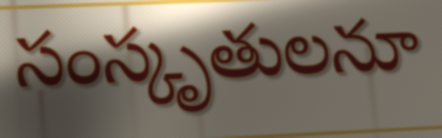
సంస్కృతులనూ